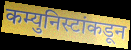
कम्युनिस्टांकडून